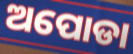
ଅପୋଡା